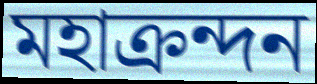
মহাক্রন্দন